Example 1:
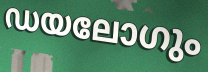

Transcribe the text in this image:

ഡയലോഗും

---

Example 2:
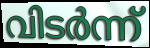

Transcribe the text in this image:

വിടർന്ന്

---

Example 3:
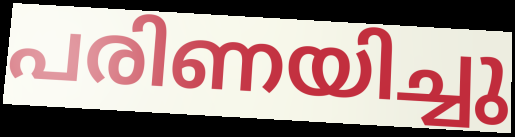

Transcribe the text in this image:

പരിണയിച്ചു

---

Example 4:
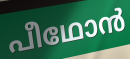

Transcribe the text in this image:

പീഥോൻ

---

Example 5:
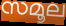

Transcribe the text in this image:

സമൂല